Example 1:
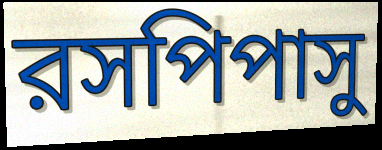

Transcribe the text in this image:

রসপিপাসু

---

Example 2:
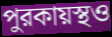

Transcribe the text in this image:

পুরকায়স্থও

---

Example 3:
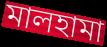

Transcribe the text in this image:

মালহামা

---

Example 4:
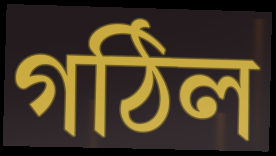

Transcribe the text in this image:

গঠিল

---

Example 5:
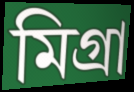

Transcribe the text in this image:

মিগ্রা